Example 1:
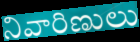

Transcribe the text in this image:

నివారిణులు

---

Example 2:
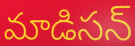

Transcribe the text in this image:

మాడిసన్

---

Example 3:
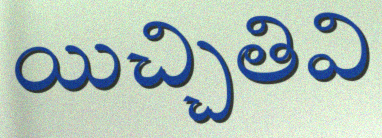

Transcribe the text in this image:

యిచ్చితివి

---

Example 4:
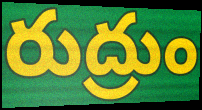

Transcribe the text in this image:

రుద్రుం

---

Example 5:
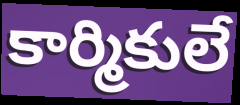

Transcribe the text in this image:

కార్మికులే